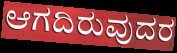
ಆಗದಿರುವುದರ